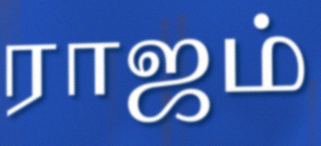
ராஜம்